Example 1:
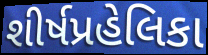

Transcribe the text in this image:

શીર્ષપ્રહેલિકા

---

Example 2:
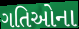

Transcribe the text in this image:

ગતિઓના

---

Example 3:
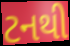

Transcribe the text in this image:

ટનથી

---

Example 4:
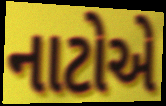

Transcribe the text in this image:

નાટોએ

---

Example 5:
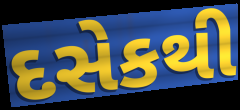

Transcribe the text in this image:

દસેકથી